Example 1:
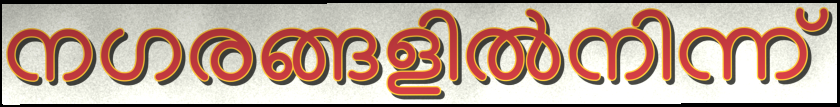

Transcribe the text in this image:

നഗരങ്ങളിൽനിന്ന്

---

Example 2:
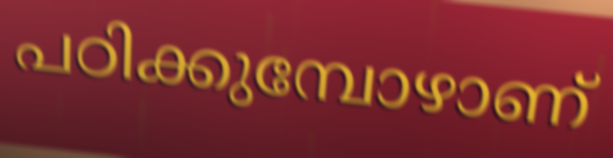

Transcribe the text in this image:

പഠിക്കുമ്പോഴാണ്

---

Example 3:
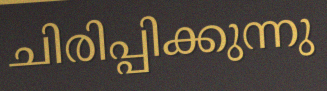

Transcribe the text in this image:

ചിരിപ്പിക്കുന്നു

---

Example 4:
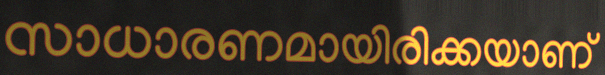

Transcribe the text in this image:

സാധാരണമായിരിക്കയാണ്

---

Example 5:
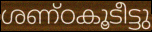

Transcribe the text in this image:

ശണ്ഠകൂടീട്ടു